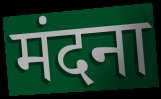
मंदना